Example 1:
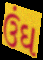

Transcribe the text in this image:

ઉંઘ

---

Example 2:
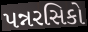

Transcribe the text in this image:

પન્નરસિકો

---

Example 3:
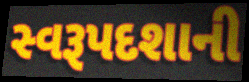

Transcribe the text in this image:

સ્વરૂપદશાની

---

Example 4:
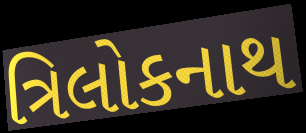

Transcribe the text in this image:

ત્રિલોકનાથ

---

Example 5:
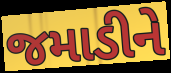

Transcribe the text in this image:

જમાડીને